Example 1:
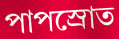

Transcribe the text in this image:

পাপস্রোত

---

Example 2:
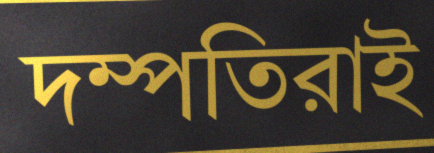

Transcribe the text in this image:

দম্পতিরাই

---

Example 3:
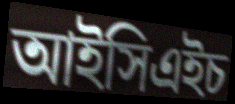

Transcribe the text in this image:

আইসিএইচ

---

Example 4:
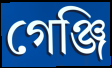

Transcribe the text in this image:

গেঞ্জি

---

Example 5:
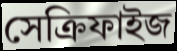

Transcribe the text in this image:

সেক্রিফাইজ